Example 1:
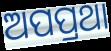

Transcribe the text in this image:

ଅପପ୍ରଥା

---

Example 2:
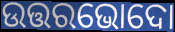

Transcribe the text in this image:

ଉତ୍ତରଭୋଦୋ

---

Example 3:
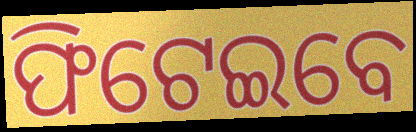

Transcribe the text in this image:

ଫିଟେଇବେ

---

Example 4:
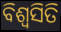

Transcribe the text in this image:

ବିଶ୍ଵସିତି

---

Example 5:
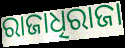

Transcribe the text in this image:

ରାଜାଧିରାଜା